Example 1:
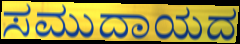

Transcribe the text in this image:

ಸಮುದಾಯದ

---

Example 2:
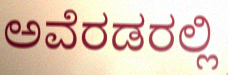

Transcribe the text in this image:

ಅವೆರಡರಲ್ಲಿ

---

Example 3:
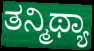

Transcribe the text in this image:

ತನ್ಮಿಥ್ಯಾ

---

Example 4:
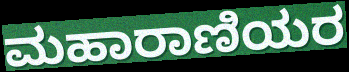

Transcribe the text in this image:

ಮಹಾರಾಣಿಯರ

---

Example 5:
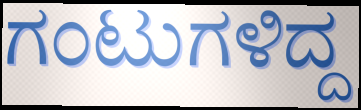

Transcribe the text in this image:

ಗಂಟುಗಳಿದ್ದ